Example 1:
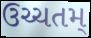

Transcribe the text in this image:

ઉચ્ચતમ્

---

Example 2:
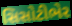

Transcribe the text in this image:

સિસોટીભેર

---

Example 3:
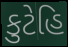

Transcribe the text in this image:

કુટેહિ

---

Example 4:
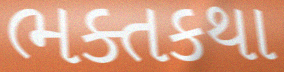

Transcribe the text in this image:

ભક્તકથા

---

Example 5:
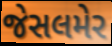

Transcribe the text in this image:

જેસલમેર